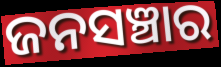
ଜନସଞ୍ଚାର